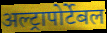
अल्ट्रापोर्टेबल